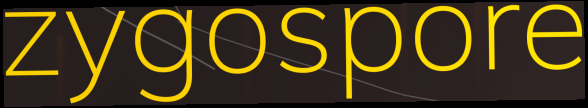
zygospore